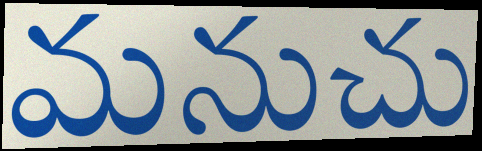
మనుచు